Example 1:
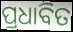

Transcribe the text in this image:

ପ୍ରଧାବିତ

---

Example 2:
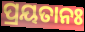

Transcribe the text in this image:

ପ୍ରୟତାନଃ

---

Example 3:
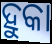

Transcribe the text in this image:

ହୁକା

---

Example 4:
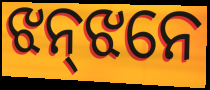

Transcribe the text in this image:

ଝନ୍‌ଝନେ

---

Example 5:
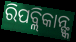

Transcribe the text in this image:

ରିପବ୍ଲିକାନ୍ଙ୍କ